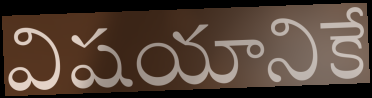
విషయానికే